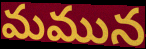
మమున